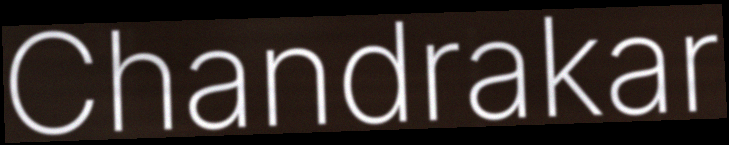
Chandrakar